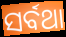
ସର୍ବଥା